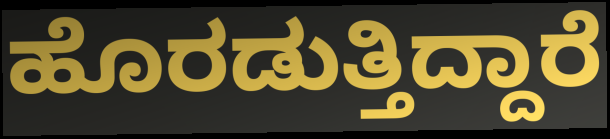
ಹೊರಡುತ್ತಿದ್ದಾರೆ